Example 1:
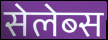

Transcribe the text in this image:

सेलेब्‍स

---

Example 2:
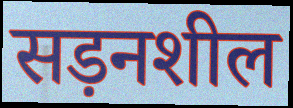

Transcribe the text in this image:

सड़नशील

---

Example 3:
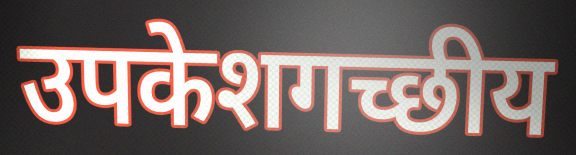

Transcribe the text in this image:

उपकेशगच्छीय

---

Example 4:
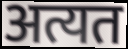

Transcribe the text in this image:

अत्यत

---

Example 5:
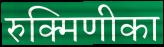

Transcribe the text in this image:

रुक्मिणीका